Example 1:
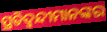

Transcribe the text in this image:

ପ୍ରତିଦ୍ୱନ୍ଦୀମାନଙ୍କର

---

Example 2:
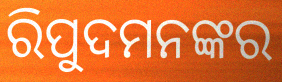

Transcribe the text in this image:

ରିପୁଦମନଙ୍କର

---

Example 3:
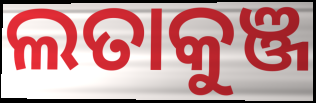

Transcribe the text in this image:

ଲତାକୁଞ୍ଜ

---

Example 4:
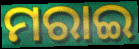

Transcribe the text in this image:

ମରାଇ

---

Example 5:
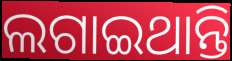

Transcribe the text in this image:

ଲଗାଇଥାନ୍ତି